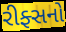
રીફ્સનો